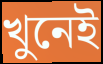
খুনেই